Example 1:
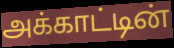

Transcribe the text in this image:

அக்காட்டின்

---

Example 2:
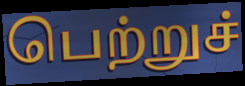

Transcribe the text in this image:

பெற்றுச்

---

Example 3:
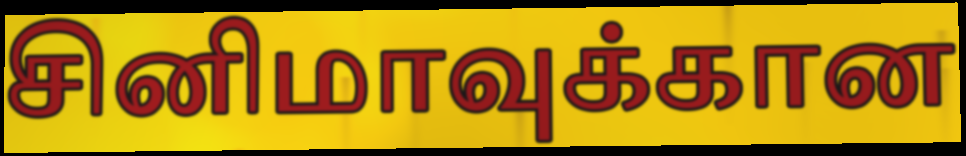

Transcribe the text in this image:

சினிமாவுக்கான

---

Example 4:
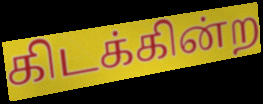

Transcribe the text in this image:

கிடக்கின்ற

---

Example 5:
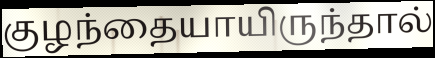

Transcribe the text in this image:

குழந்தையாயிருந்தால்